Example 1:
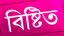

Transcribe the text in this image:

বিষ্টিত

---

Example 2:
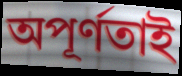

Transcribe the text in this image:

অপূর্ণতাই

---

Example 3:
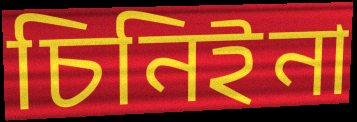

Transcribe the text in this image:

চিনিইনা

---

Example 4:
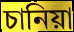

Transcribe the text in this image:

চানিয়া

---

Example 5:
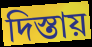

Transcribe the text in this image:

দিস্তায়